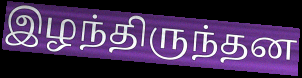
இழந்திருந்தன